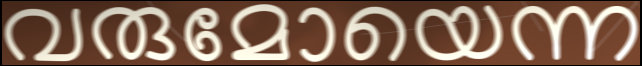
വരുമോയെന്ന